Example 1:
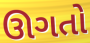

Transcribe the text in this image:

ઊગતો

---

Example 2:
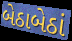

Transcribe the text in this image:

બેઠાબેઠાં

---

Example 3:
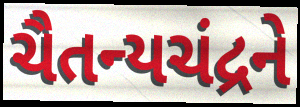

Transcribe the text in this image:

ચૈતન્યચંદ્રને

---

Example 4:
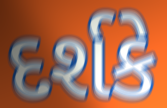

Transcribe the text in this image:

દર્શકે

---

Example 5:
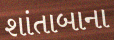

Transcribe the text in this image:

શાંતાબાના